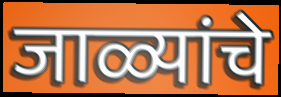
जाळ्यांचे